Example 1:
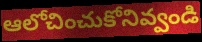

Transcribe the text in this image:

ఆలోచించుకోనివ్వండి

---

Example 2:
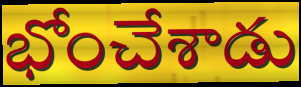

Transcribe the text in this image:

భోంచేశాడు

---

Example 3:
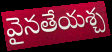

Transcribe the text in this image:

వైనతేయశ్చ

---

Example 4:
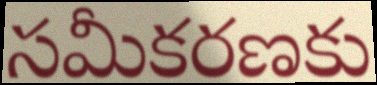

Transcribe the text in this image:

సమీకరణకు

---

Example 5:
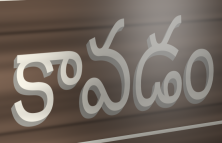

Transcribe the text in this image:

కావడం